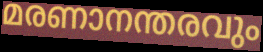
മരണാനന്തരവും